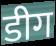
डीग